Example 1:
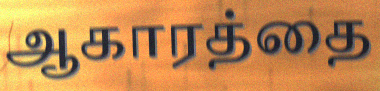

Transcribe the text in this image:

ஆகாரத்தை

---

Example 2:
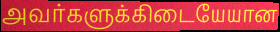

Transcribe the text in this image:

அவர்களுக்கிடையேயான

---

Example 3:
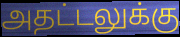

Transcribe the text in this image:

அதட்டலுக்கு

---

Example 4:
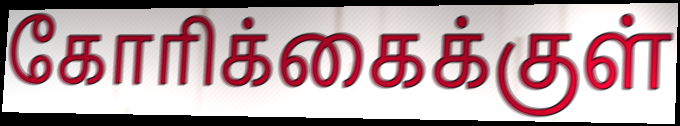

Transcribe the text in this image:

கோரிக்கைக்குள்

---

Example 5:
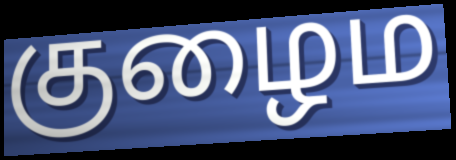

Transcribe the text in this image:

குழைம